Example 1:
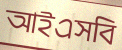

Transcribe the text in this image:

আইএসবি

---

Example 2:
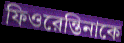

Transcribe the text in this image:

ফিওরেন্তিনাকে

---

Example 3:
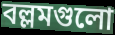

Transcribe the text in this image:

বল্লমগুলো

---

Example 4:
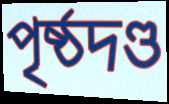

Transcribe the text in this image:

পৃষ্ঠদণ্ড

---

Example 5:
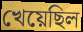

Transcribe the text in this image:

খেয়েছিল